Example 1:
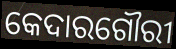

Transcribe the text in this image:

କେଦାରଗୌରୀ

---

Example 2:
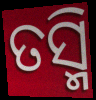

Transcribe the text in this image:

ତସ୍ମି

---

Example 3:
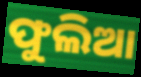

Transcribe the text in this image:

ଫୁଲିଆ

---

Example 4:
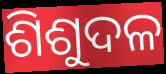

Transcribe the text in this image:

ଶିଶୁଦଳ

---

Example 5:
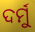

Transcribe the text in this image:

ଦର୍ମୁ